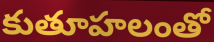
కుతూహలంతో